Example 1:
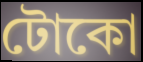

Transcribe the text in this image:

টোকো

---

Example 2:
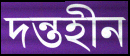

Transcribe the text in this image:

দন্তহীন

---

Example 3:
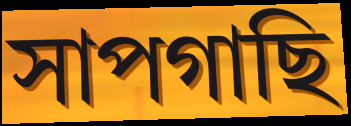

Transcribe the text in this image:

সাপগাছি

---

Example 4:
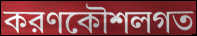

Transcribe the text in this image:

করণকৌশলগত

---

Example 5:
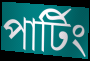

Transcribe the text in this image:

পার্টিং